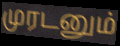
முரடனும்